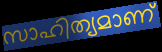
സാഹിത്യമാണ്